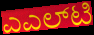
ಎಎಲ್‌ಟಿ